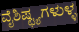
ವೈಶಿಷ್ಟ್ಯಗಳುಳ್ಳ